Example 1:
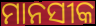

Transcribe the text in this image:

ମାନସୀକ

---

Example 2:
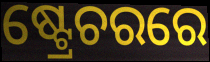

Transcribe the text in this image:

ଷ୍ଟ୍ରେଚରରେ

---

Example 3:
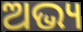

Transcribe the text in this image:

ଅଭ୍ୟ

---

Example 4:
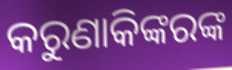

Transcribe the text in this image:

କରୁଣାକିଙ୍କରଙ୍କ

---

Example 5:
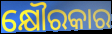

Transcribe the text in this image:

କ୍ଷୌରକାର